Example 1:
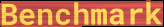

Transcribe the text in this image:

Benchmark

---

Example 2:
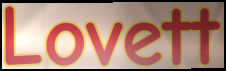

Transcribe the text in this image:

Lovett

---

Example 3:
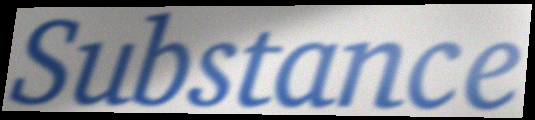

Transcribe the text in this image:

Substance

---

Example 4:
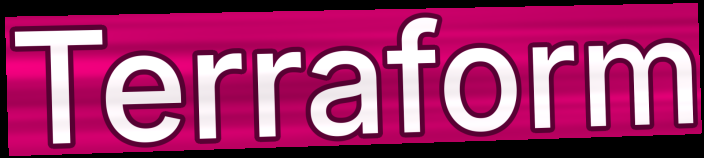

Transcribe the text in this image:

Terraform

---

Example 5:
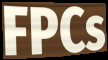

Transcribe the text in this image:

FPCs